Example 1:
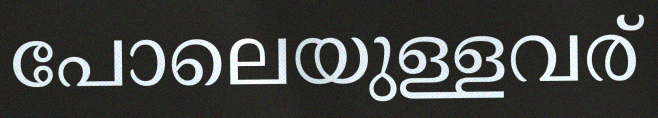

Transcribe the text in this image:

പോലെയുള്ളവര്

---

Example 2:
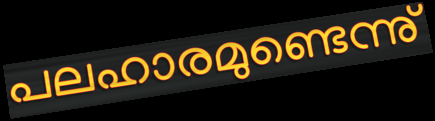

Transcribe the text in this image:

പലഹാരമുണ്ടെന്നു്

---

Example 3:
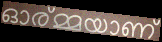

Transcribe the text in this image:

ഓര്മ്മയാണ്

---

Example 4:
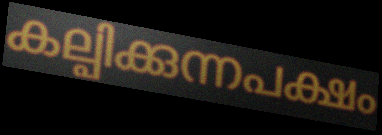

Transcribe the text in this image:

കല്പിക്കുന്നപക്ഷം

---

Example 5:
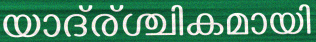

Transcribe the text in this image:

യാദ്ര്ശ്ചികമായി